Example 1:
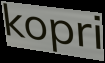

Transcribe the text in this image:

kopri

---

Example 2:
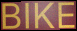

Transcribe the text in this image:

BIKE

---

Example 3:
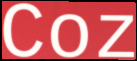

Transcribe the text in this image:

Coz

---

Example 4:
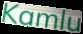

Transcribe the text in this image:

Kamlu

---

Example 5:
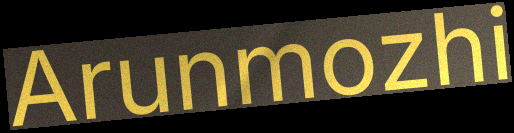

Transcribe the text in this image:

Arunmozhi